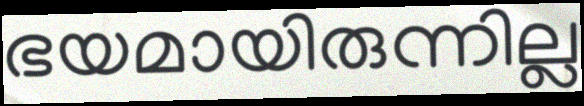
ഭയമായിരുന്നില്ല